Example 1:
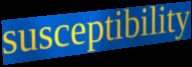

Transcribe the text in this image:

susceptibility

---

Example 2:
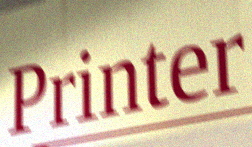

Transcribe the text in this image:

Printer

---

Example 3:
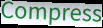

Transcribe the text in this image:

Compress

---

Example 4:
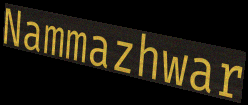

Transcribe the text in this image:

Nammazhwar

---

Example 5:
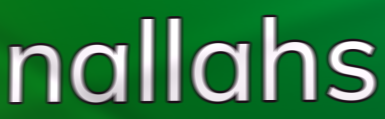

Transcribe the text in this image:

nallahs